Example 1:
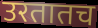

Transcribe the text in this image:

उरतातच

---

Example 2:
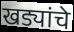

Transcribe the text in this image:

खड्यांचे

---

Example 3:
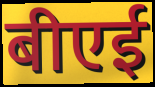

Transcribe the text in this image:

बीएई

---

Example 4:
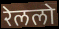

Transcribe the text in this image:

रेललो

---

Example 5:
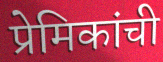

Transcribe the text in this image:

प्रेमिकांची